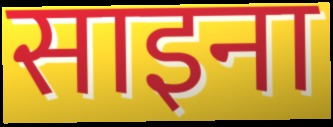
साइना